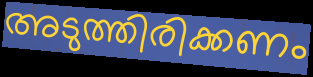
അടുത്തിരിക്കണം